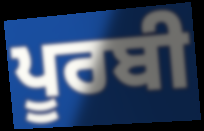
ਪੂਰਬੀ